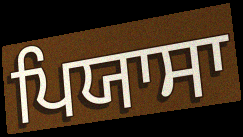
ਪਿਯਾਸਾ